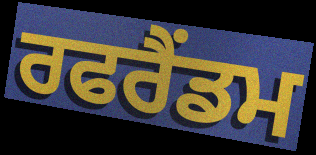
ਰਫਰੈਂਡਮ